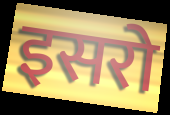
इसरो